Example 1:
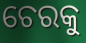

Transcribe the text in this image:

ଚେରକୁ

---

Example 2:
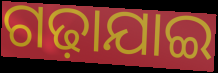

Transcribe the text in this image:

ଗଢ଼ାଯାଇ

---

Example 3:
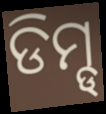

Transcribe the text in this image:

ଡିମ୍ଡ୍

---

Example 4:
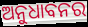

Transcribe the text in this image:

ଅନୁଧାବନର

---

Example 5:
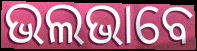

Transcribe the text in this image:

ଭଲଭାବେ